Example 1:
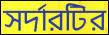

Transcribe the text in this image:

সর্দারটির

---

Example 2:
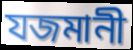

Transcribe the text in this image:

যজমানী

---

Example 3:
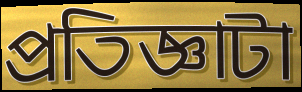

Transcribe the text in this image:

প্রতিজ্ঞাটা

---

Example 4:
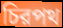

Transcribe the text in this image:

চিরপথ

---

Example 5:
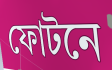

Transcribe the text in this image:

ফোটনে